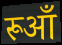
रूआँ